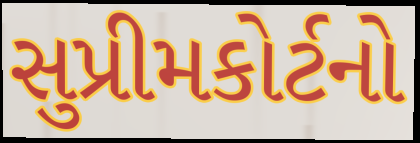
સુપ્રીમકોર્ટનો